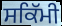
ਸਕਿੱਮੀ